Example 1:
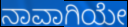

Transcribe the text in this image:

ನಾವಾಗಿಯೇ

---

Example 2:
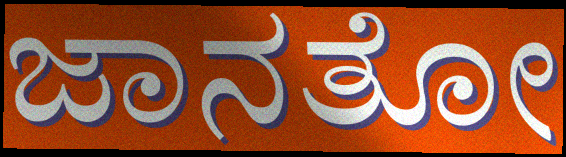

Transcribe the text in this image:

ಜಾನತೋ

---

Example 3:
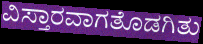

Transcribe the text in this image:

ವಿಸ್ತಾರವಾಗತೊಡಗಿತು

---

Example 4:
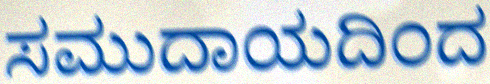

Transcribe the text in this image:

ಸಮುದಾಯದಿಂದ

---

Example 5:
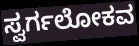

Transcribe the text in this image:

ಸ್ವರ್ಗಲೋಕವ